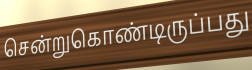
சென்றுகொண்டிருப்பது